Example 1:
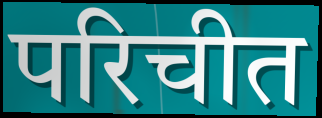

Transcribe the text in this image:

परिचीत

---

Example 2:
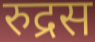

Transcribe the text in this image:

रुद्रस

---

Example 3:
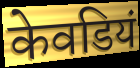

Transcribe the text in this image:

केवडियं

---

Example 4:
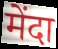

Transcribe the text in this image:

मेंदा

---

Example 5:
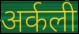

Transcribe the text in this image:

अर्कली